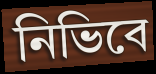
নিভিবে